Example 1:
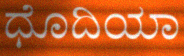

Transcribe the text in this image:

ಧೊದಿಯಾ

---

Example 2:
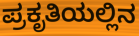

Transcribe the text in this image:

ಪ್ರಕೃತಿಯಲ್ಲಿನ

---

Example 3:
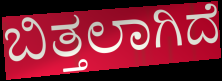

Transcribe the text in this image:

ಬಿತ್ತಲಾಗಿದೆ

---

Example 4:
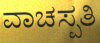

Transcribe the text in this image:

ವಾಚಸ್ಪತಿ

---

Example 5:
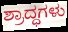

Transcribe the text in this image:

ಶ್ರಾದ್ಧಗಳು